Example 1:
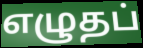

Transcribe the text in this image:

எழுதப்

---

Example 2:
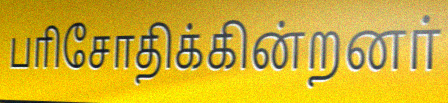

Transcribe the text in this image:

பரிசோதிக்கின்றனர்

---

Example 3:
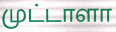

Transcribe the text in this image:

முட்டாளா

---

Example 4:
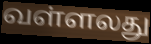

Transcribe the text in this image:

வள்ளலது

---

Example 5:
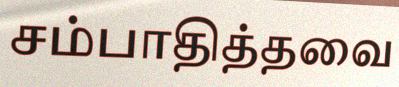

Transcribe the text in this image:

சம்பாதித்தவை